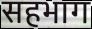
सहभाग